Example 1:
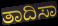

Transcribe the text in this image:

ತಾದಿಸಾ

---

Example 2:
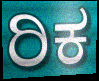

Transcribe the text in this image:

ರಿಕ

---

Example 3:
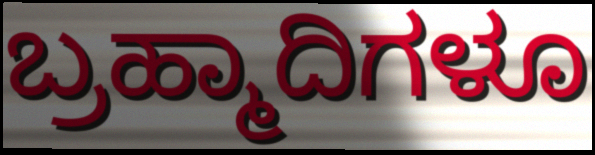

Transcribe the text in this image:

ಬ್ರಹ್ಮಾದಿಗಳೂ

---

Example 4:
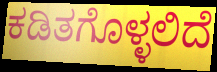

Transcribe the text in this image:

ಕಡಿತಗೊಳ್ಳಲಿದೆ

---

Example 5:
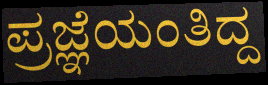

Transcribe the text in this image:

ಪ್ರಜ್ಞೆಯಂತಿದ್ದ